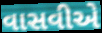
વાસવીએ